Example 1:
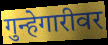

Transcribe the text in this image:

गुन्हेगारीवर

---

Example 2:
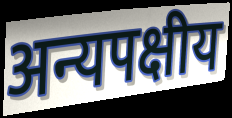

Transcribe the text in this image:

अन्यपक्षीय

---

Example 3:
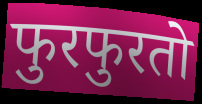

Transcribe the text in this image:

फुरफुरतो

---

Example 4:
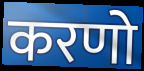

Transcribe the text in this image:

करणो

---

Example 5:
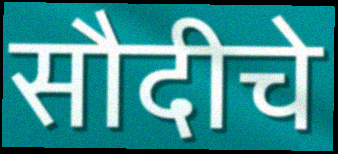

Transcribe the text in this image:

सौदीचे